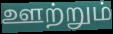
ஊற்றும்